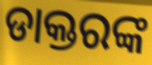
ଡାକ୍ତରଙ୍କ